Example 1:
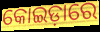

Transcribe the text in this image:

କୋଇଡ଼ାରେ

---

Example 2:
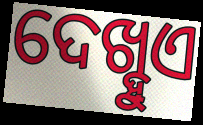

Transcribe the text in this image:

ଦେଖ୍ହୁଏ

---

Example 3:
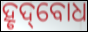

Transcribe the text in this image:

ହୃଦ୍‌ବୋଧ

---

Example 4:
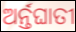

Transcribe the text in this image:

ଅର୍ନ୍ତଘାତୀ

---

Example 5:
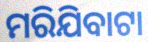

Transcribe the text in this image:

ମରିଯିବାଟା